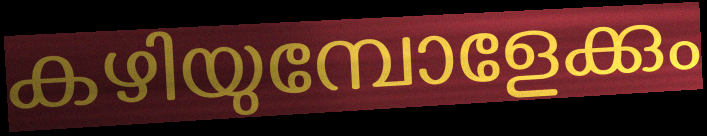
കഴിയുമ്പോളേക്കും